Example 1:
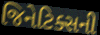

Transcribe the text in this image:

જિનેટિક્સની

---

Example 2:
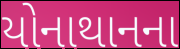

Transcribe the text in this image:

યોનાથાનના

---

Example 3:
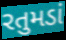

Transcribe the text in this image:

રતુમડાં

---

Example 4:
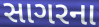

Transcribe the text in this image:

સાગરના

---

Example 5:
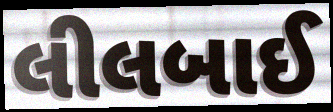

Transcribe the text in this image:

લીલબાઈ